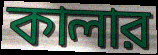
কালার